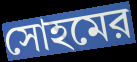
সোহমের